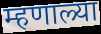
म्हणाल्या